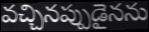
వచ్చినప్పుడైనను